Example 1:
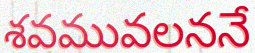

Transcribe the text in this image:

శవమువలననే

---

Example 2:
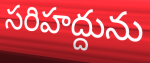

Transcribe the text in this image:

సరిహద్దును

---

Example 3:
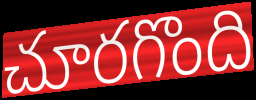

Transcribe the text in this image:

చూరగొంది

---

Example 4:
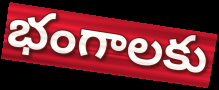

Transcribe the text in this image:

భంగాలకు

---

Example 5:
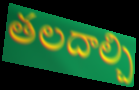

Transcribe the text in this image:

తలదాల్చి